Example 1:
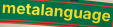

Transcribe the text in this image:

metalanguage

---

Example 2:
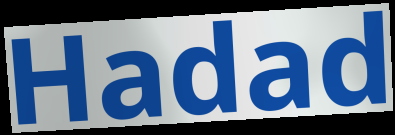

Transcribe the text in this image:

Hadad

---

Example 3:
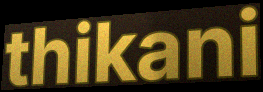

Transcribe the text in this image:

thikani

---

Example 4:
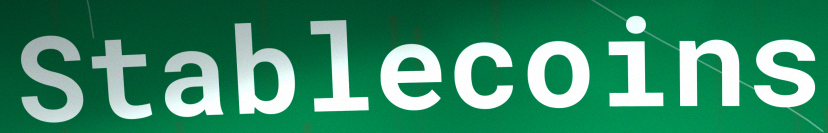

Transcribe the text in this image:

Stablecoins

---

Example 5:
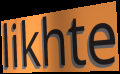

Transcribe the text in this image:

likhte